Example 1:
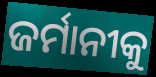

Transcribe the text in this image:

ଜର୍ମାନୀକୁ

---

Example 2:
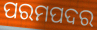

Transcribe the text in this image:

ପରମପଦର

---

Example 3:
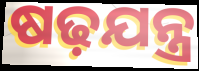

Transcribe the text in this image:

ଷଢ଼ଯନ୍ତ୍ର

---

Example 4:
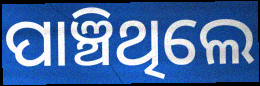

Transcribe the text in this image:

ପାଞ୍ଚିଥିଲେ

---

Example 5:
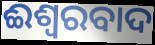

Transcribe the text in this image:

ଈଶ୍ବରବାଦ